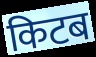
किटब